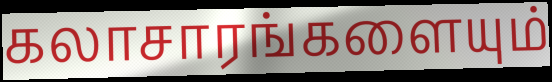
கலாசாரங்களையும்